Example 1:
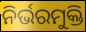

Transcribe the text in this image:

ନିର୍ଭରମୁକ୍ତି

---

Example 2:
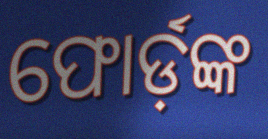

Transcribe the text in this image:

ଫୋର୍ଡ଼ଙ୍କ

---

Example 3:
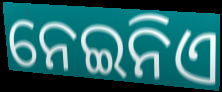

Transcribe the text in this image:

ନେଇନିଏ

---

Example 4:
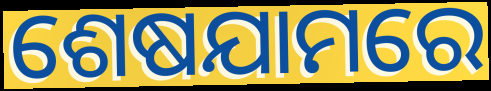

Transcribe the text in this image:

ଶେଷଯାମରେ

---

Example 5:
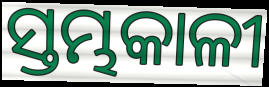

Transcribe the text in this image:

ସ୍ତମ୍ଭକାଳୀ